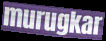
murugkar